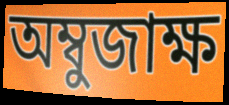
অম্বুজাক্ষ